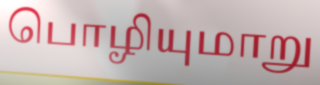
பொழியுமாறு